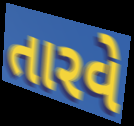
તારવે